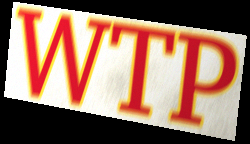
WTP